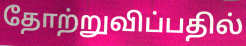
தோற்றுவிப்பதில்